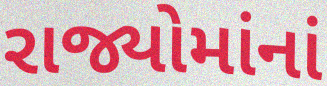
રાજ્યોમાંનાં